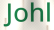
Johl